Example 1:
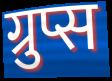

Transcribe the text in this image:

ग्रुप्स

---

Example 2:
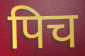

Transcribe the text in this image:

पिच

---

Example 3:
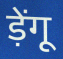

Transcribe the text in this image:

ड़ेंगू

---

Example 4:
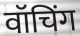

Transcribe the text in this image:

वॉचिंग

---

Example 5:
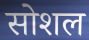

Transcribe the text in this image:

सोशल